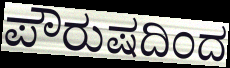
ಪೌರುಷದಿಂದ